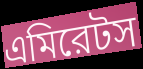
এমিরেটস